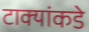
टाक्यांकडे